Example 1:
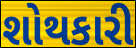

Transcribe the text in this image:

શોથકારી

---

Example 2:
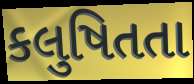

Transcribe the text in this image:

કલુષિતતા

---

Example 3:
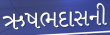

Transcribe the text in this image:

ઋષભદાસની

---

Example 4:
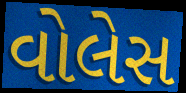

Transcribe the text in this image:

વોલેસ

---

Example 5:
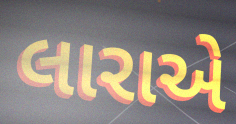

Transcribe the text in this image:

લારાએ